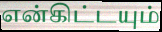
என்கிட்டயும்